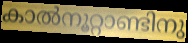
കാൽനൂറ്റാണ്ടിനു